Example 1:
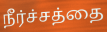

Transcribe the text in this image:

நீர்ச்சத்தை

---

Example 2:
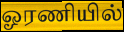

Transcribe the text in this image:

ஓரணியில்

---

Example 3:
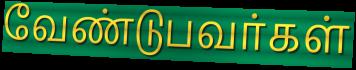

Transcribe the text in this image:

வேண்டுபவர்கள்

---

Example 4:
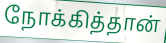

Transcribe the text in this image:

நோக்கித்தான்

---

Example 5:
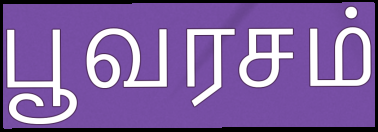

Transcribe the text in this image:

பூவரசம்